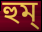
হুম্